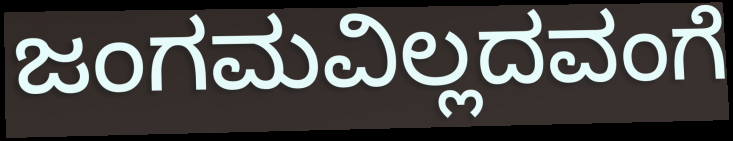
ಜಂಗಮವಿಲ್ಲದವಂಗೆ